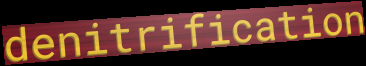
denitrification